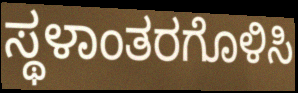
ಸ್ಥಳಾಂತರಗೊಳಿಸಿ